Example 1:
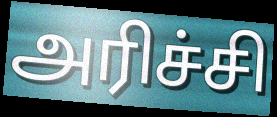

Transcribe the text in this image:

அரிச்சி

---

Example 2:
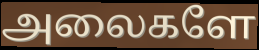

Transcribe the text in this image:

அலைகளே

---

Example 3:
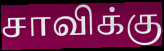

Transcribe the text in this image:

சாவிக்கு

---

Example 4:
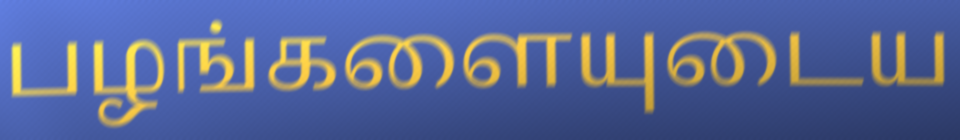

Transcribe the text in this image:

பழங்களையுடைய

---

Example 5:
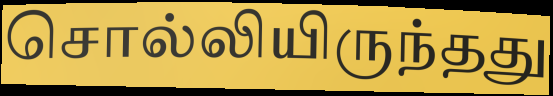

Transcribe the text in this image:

சொல்லியிருந்தது